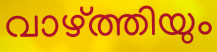
വാഴ്ത്തിയും